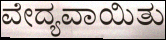
ವೇದ್ಯವಾಯಿತು